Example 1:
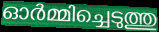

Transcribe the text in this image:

ഓർമ്മിച്ചെടുത്തു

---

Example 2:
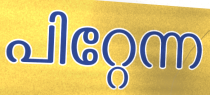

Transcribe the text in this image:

പിറ്റേന്ന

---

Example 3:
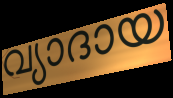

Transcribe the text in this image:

വ്യാദായ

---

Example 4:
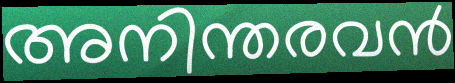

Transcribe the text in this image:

അനിന്തരവൻ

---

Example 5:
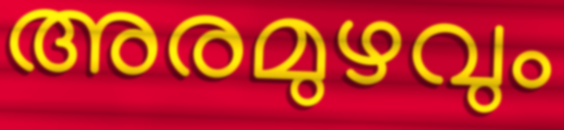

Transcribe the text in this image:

അരമുഴവും